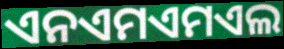
ଏନଏମଏମଏଲ